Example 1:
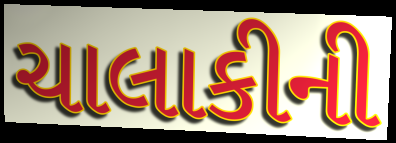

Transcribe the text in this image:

ચાલાકીની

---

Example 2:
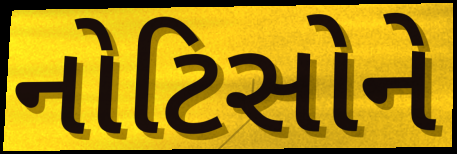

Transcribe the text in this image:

નોટિસોને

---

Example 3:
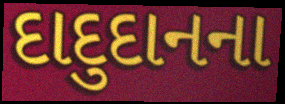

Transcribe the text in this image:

દાદુદાનના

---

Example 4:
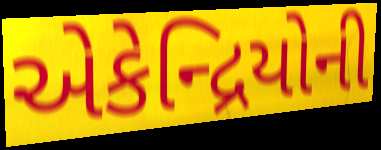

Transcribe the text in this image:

એકેન્દ્રિયોની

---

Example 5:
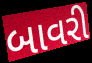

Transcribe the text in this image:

બાવરી